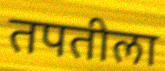
तपतीला